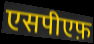
एसपीएफ़